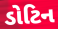
ડોટિન